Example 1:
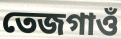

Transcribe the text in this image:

তেজগাওঁ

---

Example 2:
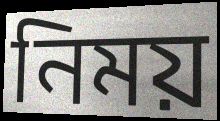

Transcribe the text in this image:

নিময়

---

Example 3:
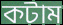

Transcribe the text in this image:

কটাম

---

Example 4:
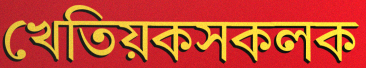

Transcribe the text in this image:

খেতিয়কসকলক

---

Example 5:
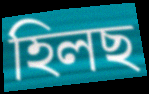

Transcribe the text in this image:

হিলছ